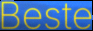
Beste